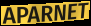
APARNET